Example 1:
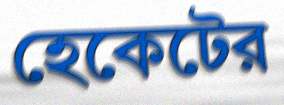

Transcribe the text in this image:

হেকেটের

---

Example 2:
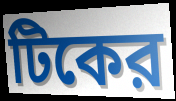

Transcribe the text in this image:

টিকের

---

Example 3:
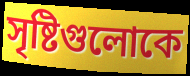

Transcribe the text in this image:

সৃষ্টিগুলোকে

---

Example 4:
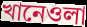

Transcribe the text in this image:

খানেওলা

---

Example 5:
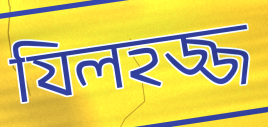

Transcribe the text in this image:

যিলহজ্জ